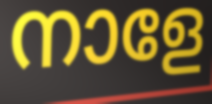
നാളേ